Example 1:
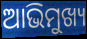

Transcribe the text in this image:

ଆଭିମୁଖ୍ୟ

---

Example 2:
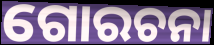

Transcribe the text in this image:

ଗୋରଚନା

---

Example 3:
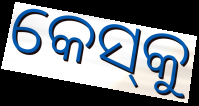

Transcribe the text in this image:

କେସ୍‌କୁ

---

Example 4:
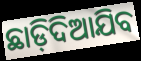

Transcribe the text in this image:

ଛାଡ଼ିଦିଆଯିବ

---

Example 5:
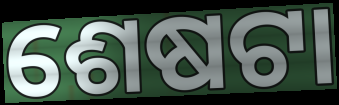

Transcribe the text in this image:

ଶେଷଟା